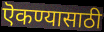
ऎकण्यासाठी